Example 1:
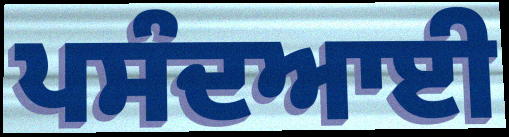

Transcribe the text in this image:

ਪਸੰਦਆਈ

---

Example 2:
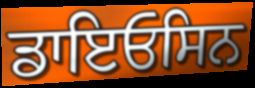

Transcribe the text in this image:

ਡਾਇਓਸਿਨ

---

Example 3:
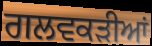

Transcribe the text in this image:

ਗਲਵਕੜੀਆਂ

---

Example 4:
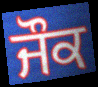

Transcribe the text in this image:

ਜੌਕ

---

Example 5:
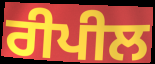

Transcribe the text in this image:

ਰੀਪੀਲ